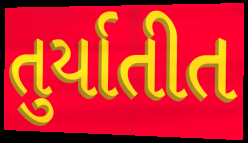
તુર્યાતીત